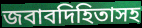
জবাবদিহিতাসহ